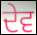
ਦੇਵ